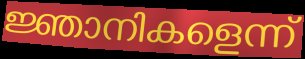
ജ്ഞാനികളെന്ന്